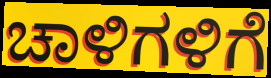
ಚಾಳಿಗಳಿಗೆ